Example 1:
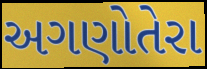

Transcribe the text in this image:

અગણોતેરા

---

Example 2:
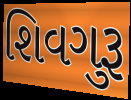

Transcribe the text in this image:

શિવગુરૂ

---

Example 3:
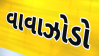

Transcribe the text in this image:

વાવાઝોડો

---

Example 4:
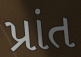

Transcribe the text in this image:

પ્રાંત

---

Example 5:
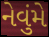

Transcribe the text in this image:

નેવુંમે